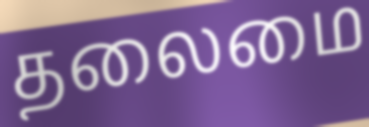
தலைமை